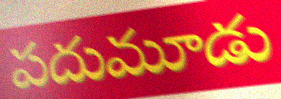
పదుమూడు